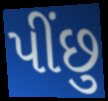
પીંછુ